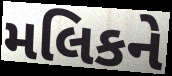
મલિકને